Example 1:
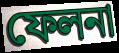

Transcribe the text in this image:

ফেলনা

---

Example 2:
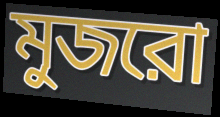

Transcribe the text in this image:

মুজরো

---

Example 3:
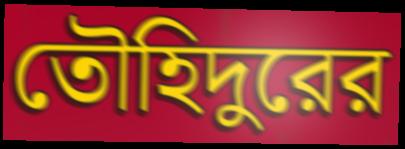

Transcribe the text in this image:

তৌহিদুরের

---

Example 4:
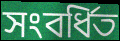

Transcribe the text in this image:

সংবর্ধিত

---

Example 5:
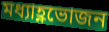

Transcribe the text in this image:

মধ্যাহ্ণভোজন